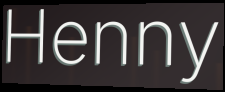
Henny